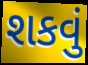
શકવું